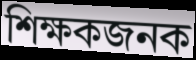
শিক্ষকজনক